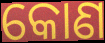
କୋଣ